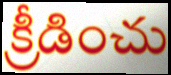
క్రీడించు